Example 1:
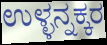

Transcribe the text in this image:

ಉಳ್ಳನ್ನಕ್ಕರ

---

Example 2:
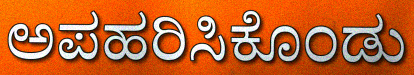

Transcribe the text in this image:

ಅಪಹರಿಸಿಕೊಂಡು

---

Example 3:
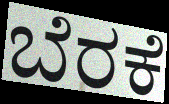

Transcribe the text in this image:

ಬೆರಕೆ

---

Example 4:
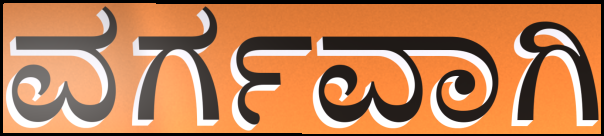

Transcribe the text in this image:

ವರ್ಗವಾಗಿ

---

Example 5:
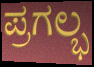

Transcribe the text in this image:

ಪ್ರಗಲ್ಭ